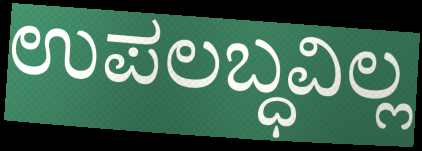
ಉಪಲಬ್ಧವಿಲ್ಲ